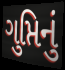
ગુપ્તિનું